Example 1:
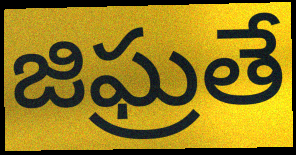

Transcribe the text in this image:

జిఘ్రతే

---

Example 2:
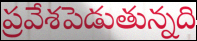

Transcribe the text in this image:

ప్రవేశపెడుతున్నది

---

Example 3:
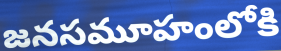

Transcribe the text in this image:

జనసమూహంలోకి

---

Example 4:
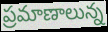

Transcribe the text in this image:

ప్రమాణాలున్న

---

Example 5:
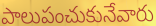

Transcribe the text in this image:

పాలుపంచుకునేవారు